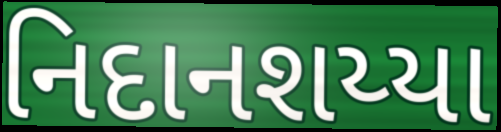
નિદાનશય્યા